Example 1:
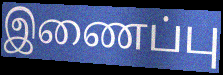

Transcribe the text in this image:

இணைப்பு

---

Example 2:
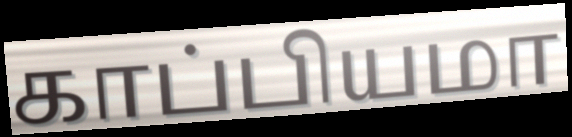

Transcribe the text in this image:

காப்பியமா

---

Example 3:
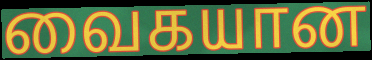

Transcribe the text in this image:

வைகயான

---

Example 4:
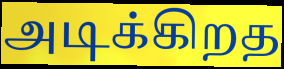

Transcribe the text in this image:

அடிக்கிறத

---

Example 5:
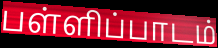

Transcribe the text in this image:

பள்ளிப்பாடம்